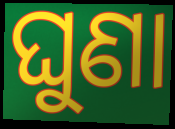
ଘୁଣା